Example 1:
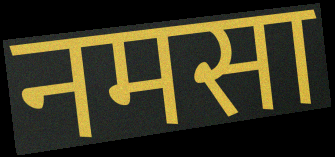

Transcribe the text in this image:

नमसा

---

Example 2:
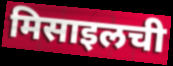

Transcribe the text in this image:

मिसाइलची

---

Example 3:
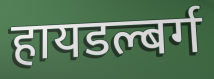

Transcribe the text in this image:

हायडल्बर्ग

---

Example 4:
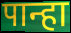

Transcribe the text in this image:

पान्हा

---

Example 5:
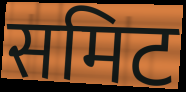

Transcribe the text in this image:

समिट